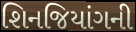
શિનજિયાંગની